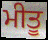
ਮੀਤੂ